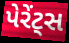
પેરેંટ્સ